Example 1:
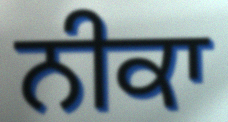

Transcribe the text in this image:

ਨੀਕਾ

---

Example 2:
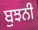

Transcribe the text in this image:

ਬੁਝਨੀ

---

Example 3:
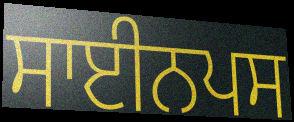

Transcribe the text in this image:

ਸਾਈਨਪਸ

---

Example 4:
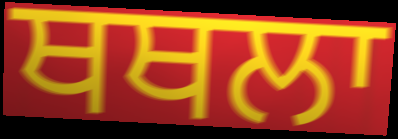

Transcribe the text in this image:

ਥਥਲਾ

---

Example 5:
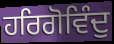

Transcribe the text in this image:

ਹਰਿਗੋਵਿੰਦੁ